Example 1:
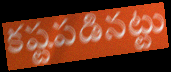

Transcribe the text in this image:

కష్టపడినట్టు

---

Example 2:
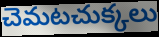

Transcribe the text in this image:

చెమటచుక్కలు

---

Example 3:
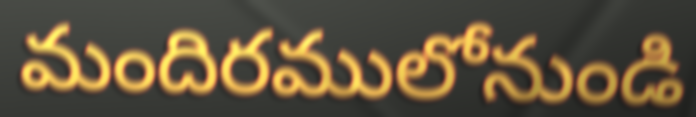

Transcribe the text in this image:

మందిరములోనుండి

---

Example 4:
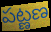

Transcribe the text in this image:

పట్ణణ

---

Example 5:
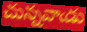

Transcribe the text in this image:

చున్నవాఁడు